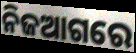
ନିଜଆଗରେ